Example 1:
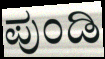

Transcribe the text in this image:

ಪುಂಡಿ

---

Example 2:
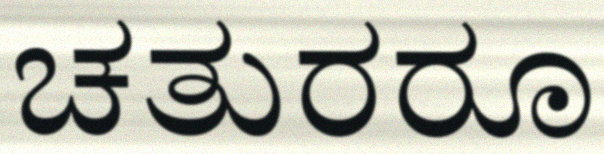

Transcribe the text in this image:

ಚತುರರೂ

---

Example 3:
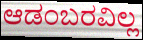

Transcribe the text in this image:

ಆಡಂಬರವಿಲ್ಲ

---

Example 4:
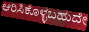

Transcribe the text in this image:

ಆರಿಸಿಕೊಳ್ಳಬಹುದೇ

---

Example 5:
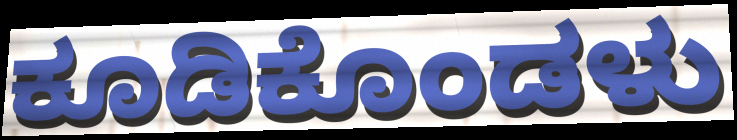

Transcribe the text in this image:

ಕೂಡಿಕೊಂಡಳು